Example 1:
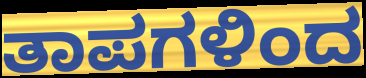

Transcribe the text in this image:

ತಾಪಗಳಿಂದ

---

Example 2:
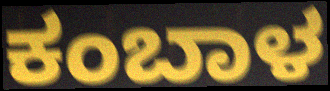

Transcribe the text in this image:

ಕಂಬಾಳ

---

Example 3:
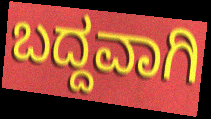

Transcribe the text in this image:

ಬದ್ದವಾಗಿ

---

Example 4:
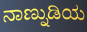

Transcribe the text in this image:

ನಾಣ್ನುಡಿಯ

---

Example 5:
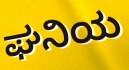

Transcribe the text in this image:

ಘನಿಯ